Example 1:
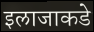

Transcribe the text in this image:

इलाजाकडे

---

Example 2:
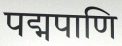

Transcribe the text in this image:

पद्मपाणि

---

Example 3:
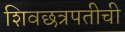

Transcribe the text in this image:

शिवछत्रपतीची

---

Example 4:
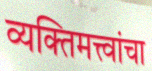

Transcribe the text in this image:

व्यक्तिमत्त्वांचा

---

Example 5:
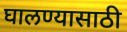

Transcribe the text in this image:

घालण्यासाठी